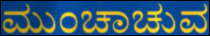
ಮುಂಚಾಚುವ